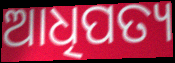
ଆଧିପତ୍ୟ